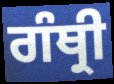
ਗੰਥ੍ਰੀ